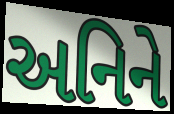
અનિને